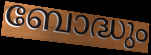
ബോദ്ധും